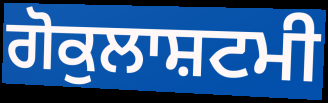
ਗੋਕੁਲਾਸ਼ਟਮੀ